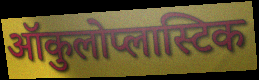
ऑकुलोप्लास्टिक